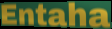
Entaha